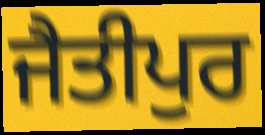
ਜੈਤੀਪੁਰ